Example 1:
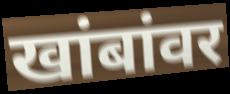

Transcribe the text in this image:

खांबांवर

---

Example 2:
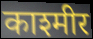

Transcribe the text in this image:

काश्मीर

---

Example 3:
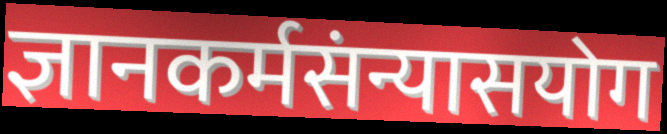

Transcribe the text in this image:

ज्ञानकर्मसंन्यासयोग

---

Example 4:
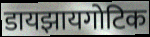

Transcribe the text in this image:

डायझायगोटिक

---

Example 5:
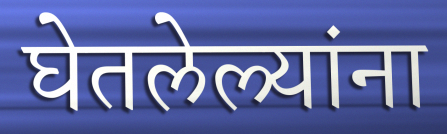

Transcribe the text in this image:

घेतलेल्यांना